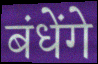
बंधेंगे